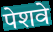
पेशवे